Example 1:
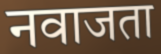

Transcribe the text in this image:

नवाजता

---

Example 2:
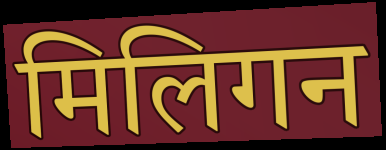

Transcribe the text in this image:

मिलिगन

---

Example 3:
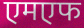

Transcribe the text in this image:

एमएफ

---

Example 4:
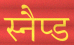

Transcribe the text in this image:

स्नैप्ड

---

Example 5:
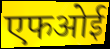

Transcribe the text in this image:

एफओई